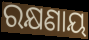
ରକ୍ଷଣାୟ